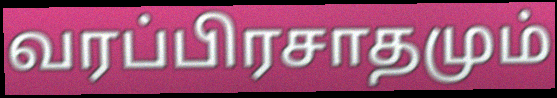
வரப்பிரசாதமும்